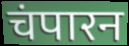
चंपारन